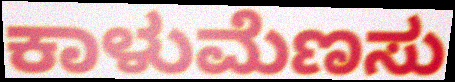
ಕಾಳುಮೆಣಸು